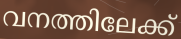
വനത്തിലേക്ക്